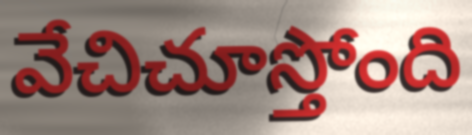
వేచిచూస్తోంది